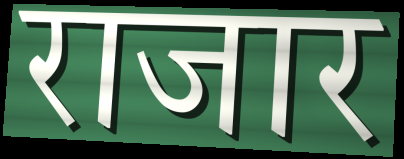
राजार